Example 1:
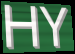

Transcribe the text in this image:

HY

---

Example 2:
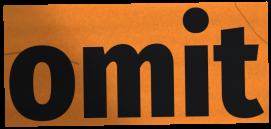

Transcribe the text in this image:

omit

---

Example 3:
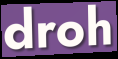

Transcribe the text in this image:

droh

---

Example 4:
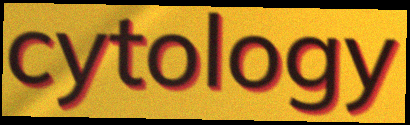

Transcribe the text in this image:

cytology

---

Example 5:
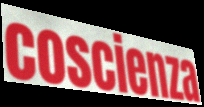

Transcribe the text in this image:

coscienza